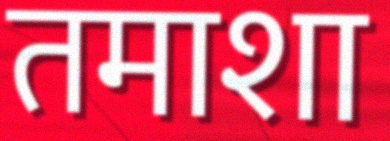
तमाशा